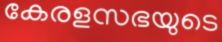
കേരളസഭയുടെ